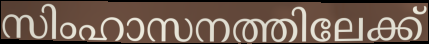
സിംഹാസനത്തിലേക്ക്